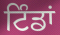
ਟਿੰਡਾਂ